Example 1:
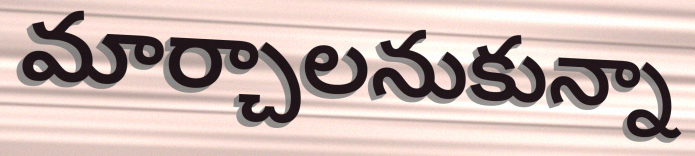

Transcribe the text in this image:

మార్చాలనుకున్నా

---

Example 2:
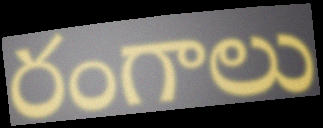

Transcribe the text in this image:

రంగాలు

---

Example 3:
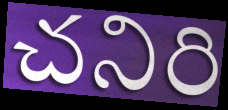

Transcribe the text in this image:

చనిరి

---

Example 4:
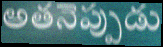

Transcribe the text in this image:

అతనెప్పుడు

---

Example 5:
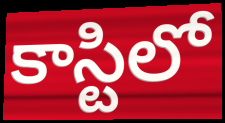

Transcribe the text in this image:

కాస్టిలో